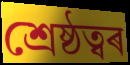
শ্ৰেষ্ঠত্বৰ